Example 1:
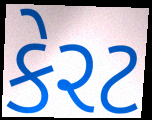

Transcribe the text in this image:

કેરટ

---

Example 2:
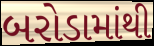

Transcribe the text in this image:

બરોડામાંથી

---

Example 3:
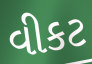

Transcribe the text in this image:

વીકટ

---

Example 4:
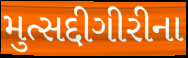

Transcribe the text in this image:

મુત્સદ્દીગીરીના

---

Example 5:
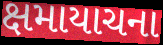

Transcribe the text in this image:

ક્ષમાયાચના